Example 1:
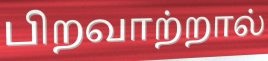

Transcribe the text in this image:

பிறவாற்றால்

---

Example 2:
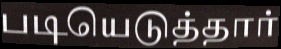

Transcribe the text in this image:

படியெடுத்தார்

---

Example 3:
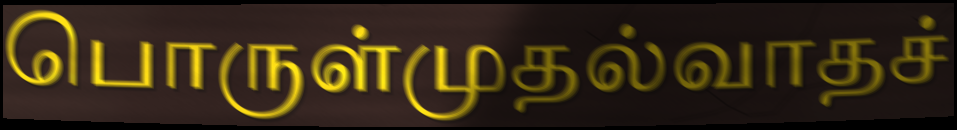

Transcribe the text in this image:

பொருள்முதல்வாதச்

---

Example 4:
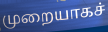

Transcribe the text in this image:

முறையாகச்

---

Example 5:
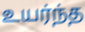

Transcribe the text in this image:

உயர்ந்த